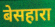
बेसहारा